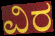
ವಿರ